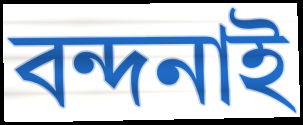
বন্দনাই